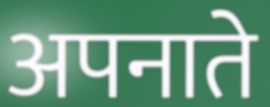
अपनाते